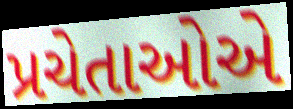
પ્રચેતાઓએ